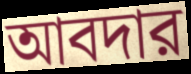
আবদার